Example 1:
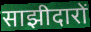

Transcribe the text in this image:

साझीदारों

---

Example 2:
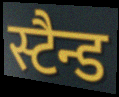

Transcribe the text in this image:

स्टैन्ड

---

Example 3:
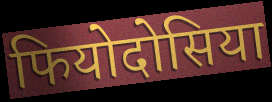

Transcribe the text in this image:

फियोदोसिया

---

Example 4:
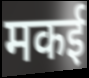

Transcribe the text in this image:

मकई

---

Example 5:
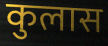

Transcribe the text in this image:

कुलास